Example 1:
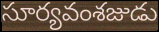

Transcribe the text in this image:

సూర్యవంశజుడు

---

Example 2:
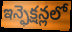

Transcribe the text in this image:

ఇన్ఫెక్షన్లలో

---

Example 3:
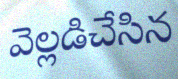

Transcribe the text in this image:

వెల్లడిచేసిన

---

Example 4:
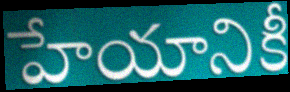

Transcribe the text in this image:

హేయానికీ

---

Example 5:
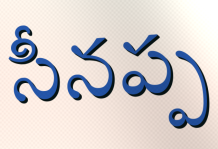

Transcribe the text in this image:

సీనప్ప